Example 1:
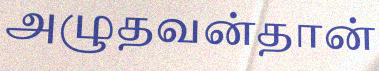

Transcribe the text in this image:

அழுதவன்தான்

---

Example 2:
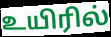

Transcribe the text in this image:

உயிரில்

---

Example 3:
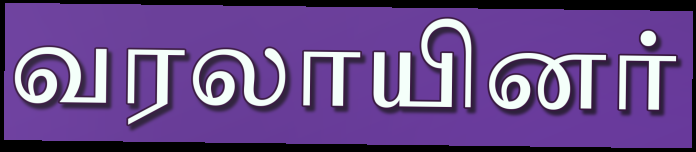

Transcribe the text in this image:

வரலாயினர்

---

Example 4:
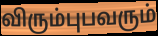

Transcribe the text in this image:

விரும்புபவரும்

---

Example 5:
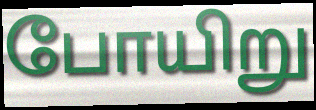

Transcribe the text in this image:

போயிறு